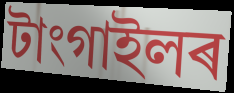
টাংগাইলৰ